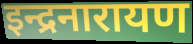
इन्द्रनारायण